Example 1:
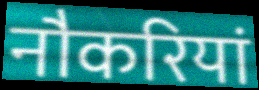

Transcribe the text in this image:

नौकरियां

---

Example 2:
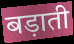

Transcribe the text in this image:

बड़ाती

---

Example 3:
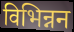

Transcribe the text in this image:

विभिन्नन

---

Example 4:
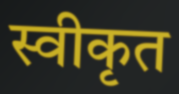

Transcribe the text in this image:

स्वीकृत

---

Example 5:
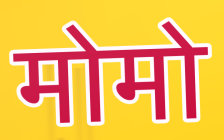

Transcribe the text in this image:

मोमो